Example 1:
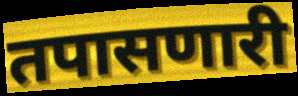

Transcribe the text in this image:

तपासणारी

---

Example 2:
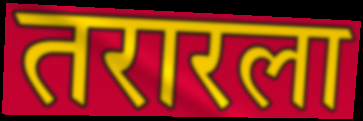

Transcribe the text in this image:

तरारला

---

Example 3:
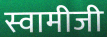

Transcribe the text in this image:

स्वामीजी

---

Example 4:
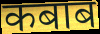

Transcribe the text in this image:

कबाब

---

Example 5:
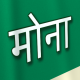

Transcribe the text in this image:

मोना